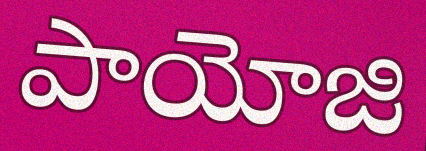
పాయోజి